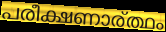
പരീക്ഷണാര്ത്ഥം